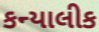
કન્યાલીક